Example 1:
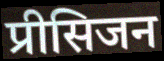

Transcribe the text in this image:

प्रीसिजन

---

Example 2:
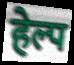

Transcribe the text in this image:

हेल्‍प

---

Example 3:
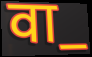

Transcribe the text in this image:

वा॒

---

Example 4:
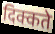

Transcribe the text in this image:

दिक्कते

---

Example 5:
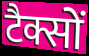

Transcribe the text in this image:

टैक्सों